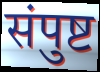
संपुष्ट